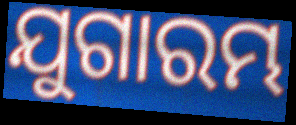
ଯୁଗାରମ୍ଭ